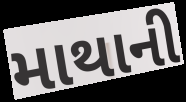
માથાની